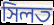
সিলত